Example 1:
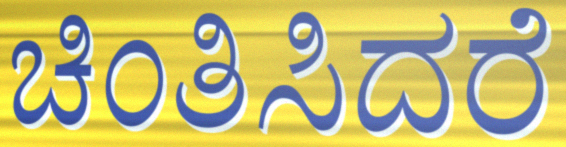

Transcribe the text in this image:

ಚಿಂತಿಸಿದರೆ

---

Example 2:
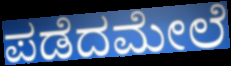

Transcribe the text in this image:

ಪಡೆದಮೇಲೆ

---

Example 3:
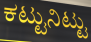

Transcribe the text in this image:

ಕಟ್ಟುನಿಟ್ಟು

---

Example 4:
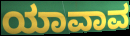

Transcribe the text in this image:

ಯಾವಾವ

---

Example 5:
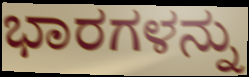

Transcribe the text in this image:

ಭಾರಗಳನ್ನು